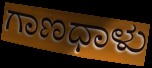
ಗಾಣಧಾಳು